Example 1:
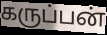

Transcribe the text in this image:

கருப்பன்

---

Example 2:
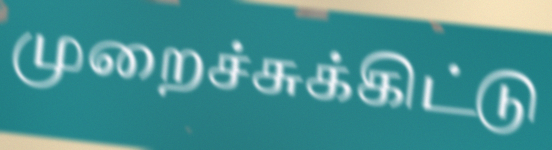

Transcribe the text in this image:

முறைச்சுக்கிட்டு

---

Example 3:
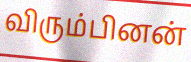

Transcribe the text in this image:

விரும்பினன்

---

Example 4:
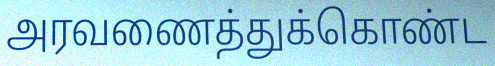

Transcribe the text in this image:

அரவணைத்துக்கொண்ட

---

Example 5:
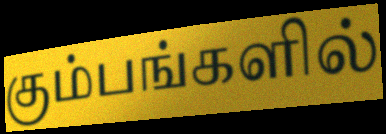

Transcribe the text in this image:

கும்பங்களில்